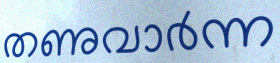
തണുവാർന്ന